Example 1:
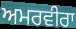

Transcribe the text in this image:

ਅਮਰਵੀਰਾ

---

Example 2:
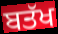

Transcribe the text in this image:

ਬਤੱਖ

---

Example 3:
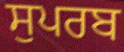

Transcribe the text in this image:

ਸੁਪਰਬ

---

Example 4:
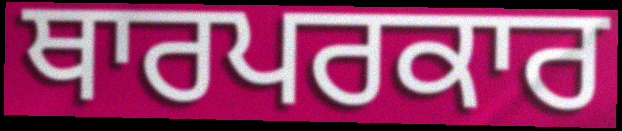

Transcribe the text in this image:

ਥਾਰਪਰਕਾਰ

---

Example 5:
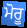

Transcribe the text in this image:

ਮੋਰੂ